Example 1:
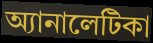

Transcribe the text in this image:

অ্যানালেটিকা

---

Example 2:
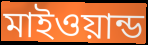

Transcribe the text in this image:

মাইওয়ান্ড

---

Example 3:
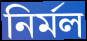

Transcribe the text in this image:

নির্মল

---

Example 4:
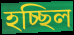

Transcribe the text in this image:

হচ্ছিল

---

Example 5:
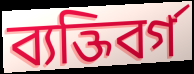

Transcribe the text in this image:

ব্যক্তিবর্গ